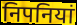
निपनियां